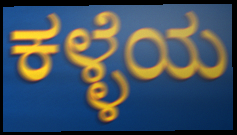
ಕಳ್ಳೆಯ